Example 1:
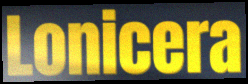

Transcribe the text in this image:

Lonicera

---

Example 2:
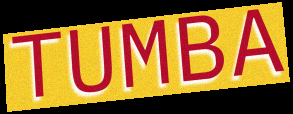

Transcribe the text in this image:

TUMBA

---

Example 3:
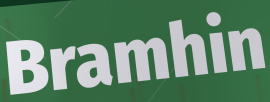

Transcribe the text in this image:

Bramhin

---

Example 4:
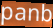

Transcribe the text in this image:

panb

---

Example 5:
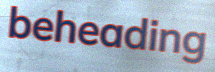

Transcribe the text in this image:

beheading